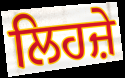
ਲਿਹਜ਼ੇ